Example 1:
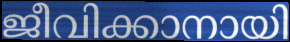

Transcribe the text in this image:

ജീവിക്കാനായി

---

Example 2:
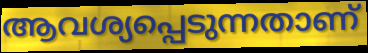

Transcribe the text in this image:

ആവശ്യപ്പെടുന്നതാണ്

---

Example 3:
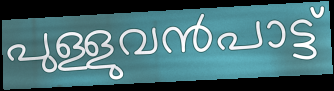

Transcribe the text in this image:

പുള്ളുവൻപാട്ട്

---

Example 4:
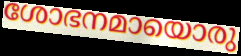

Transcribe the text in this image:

ശോഭനമായൊരു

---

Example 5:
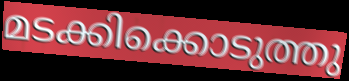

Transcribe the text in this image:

മടക്കിക്കൊടുത്തു